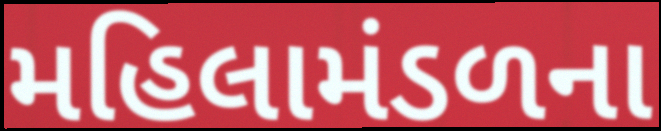
મહિલામંડળના